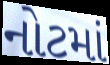
નોટમાં